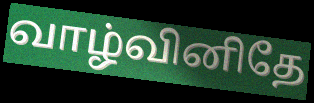
வாழ்வினிதே